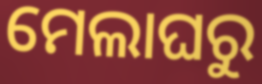
ମେଲାଘରୁ